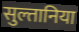
सुल्तानिया